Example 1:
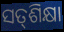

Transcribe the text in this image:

ସତ୍‌ଶିକ୍ଷା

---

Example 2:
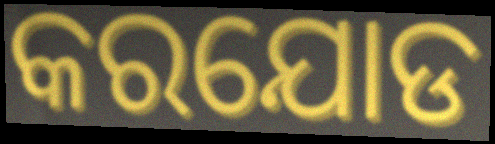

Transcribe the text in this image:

କରଯୋଡ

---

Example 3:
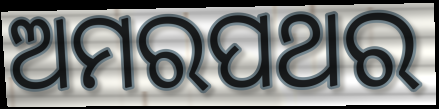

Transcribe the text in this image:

ଅମରପଥର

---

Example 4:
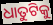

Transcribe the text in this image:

ଧାତୁଟିକୁ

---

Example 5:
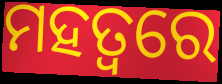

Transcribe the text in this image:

ମହତ୍ୱରେ